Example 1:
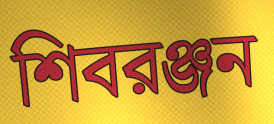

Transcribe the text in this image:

শিবরঞ্জন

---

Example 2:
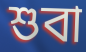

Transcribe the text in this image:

শুবা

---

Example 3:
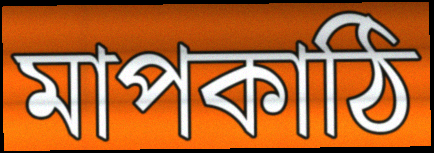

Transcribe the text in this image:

মাপকাঠি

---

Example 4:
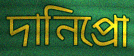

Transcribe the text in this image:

দানিপ্রো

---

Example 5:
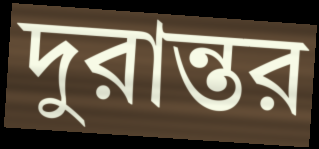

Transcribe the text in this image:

দুরান্তর